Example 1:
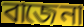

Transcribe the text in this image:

বাজেনা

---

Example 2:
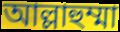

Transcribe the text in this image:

আল্লাহুম্মা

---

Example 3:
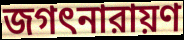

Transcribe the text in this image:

জগৎনারায়ণ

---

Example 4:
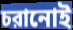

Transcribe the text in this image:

চরানোই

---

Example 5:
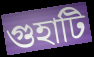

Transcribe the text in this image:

গুহাটি